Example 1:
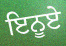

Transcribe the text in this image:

ਇਨੂਏ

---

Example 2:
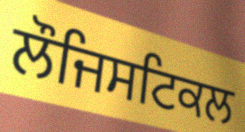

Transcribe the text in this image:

ਲੌਜਿਸਟਿਕਲ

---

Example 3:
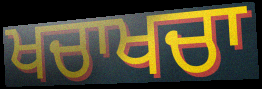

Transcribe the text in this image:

ਖਚਾਖਚਾ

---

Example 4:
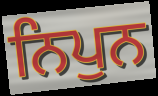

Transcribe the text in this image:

ਨਿਪੁਨ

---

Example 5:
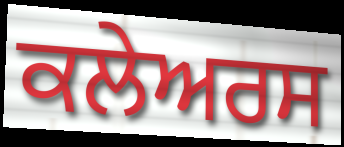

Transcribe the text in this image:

ਕਲੇਅਰਸ